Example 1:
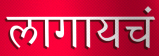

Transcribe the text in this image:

लागायचं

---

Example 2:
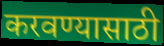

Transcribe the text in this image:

करवण्यासाठी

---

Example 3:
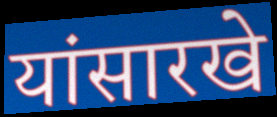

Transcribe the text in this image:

यांसारखे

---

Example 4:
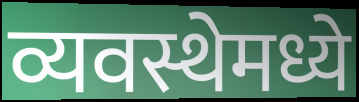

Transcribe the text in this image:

व्यवस्थेमध्ये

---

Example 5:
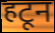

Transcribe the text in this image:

हटून